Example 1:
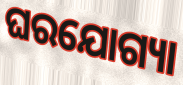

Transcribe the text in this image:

ଘରଯୋଗ୍ୟା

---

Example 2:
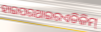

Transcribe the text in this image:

ହାଇପରଥାଇରଏଡିଜିମ୍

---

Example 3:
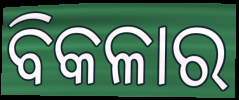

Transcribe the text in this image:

ବିକଳାର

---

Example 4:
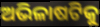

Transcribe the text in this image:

ଅଭିଳାଷଟିକୁ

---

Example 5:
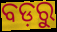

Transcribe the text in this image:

ବଡ଼ରୁ